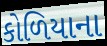
કોળિયાના